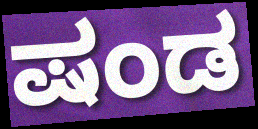
ಷಂಡ